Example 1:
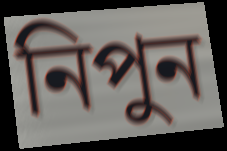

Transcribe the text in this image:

নিপুন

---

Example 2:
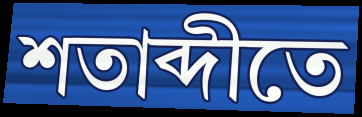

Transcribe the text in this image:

শতাব্দীতে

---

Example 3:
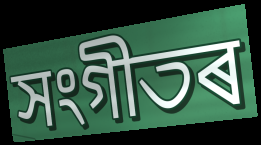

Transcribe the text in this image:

সংগীতৰ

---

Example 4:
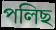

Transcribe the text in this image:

পলিছ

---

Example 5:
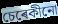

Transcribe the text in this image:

চেৰেকীনো